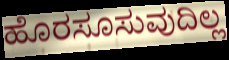
ಹೊರಸೂಸುವುದಿಲ್ಲ